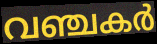
വഞ്ചകർ